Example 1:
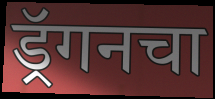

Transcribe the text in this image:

ड्रॅगनचा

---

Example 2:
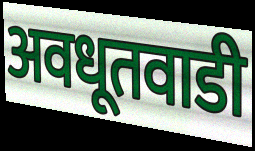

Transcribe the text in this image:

अवधूतवाडी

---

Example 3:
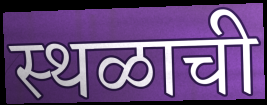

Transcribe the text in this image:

स्थळाची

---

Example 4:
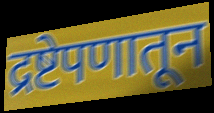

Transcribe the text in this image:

द्रष्टेपणातून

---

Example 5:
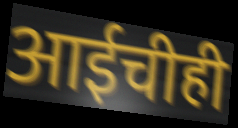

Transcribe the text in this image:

आईचीही